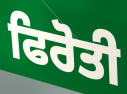
ਫਿਰੋਤੀ